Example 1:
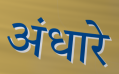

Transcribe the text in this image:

अंधारे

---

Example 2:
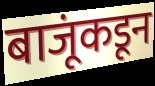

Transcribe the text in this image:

बाजूंकडून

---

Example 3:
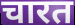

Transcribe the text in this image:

चारत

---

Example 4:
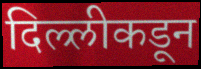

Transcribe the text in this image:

दिल्लीकडून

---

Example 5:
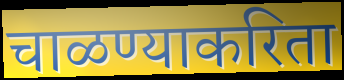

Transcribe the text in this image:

चाळण्याकरिता